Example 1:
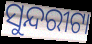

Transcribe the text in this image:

ସୁନ୍ଦରୀଟା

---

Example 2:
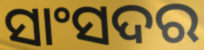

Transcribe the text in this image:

ସାଂସଦର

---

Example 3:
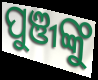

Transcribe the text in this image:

ପୁଞ୍ଜଙ୍କୁ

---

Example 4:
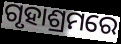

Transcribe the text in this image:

ଗୃହାଶ୍ରମରେ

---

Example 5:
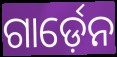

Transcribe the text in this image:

ଗାର୍ଡ଼େନ